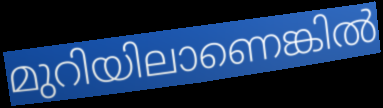
മുറിയിലാണെങ്കിൽ